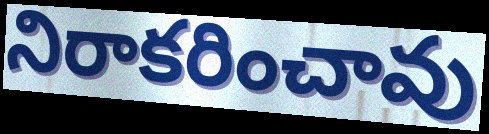
నిరాకరించావు